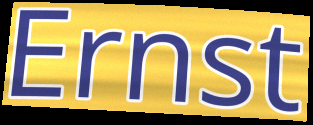
Ernst